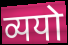
व्ययो